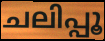
ചലിപ്പൂ